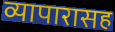
व्यापारासह